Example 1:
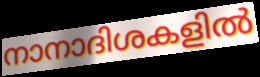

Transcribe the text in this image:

നാനാദിശകളിൽ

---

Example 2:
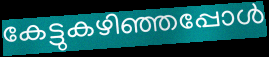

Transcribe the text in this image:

കേട്ടുകഴിഞ്ഞപ്പോൾ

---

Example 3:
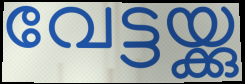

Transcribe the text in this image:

വേട്ടയ്ക്കു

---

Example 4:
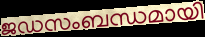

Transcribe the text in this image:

ജഡസംബന്ധമായി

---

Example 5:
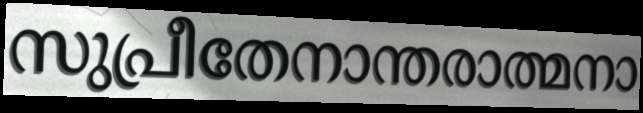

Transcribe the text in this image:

സുപ്രീതേനാന്തരാത്മനാ